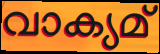
വാക്യമ്